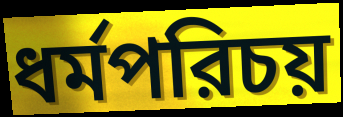
ধর্মপরিচয়